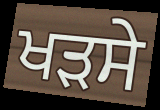
ਖੜਸੇ